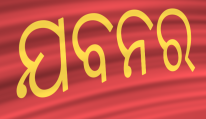
ଯବନର